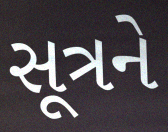
સૂત્રને